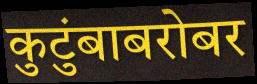
कुटुंबाबरोबर